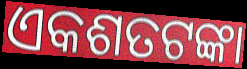
ଏକଶତଟଙ୍କା